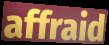
affraid